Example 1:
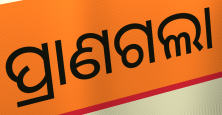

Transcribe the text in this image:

ପ୍ରାଣଗଲା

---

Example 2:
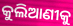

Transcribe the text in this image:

କୁଲିଆଣୀକୁ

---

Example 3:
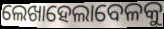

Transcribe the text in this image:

ଲେଖାହେଲାବେଳକୁ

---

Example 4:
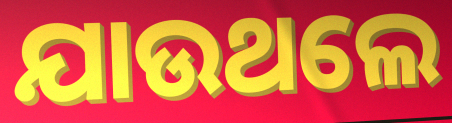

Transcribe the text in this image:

ଯାଉଥଲେ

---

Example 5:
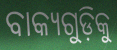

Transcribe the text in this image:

ବାକ୍ୟଗୁଡ଼ିକୁ